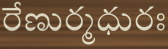
రేణుర్మధురః